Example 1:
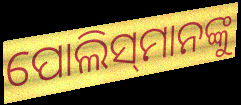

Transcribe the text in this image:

ପୋଲିସ୍‌ମାନଙ୍କୁ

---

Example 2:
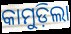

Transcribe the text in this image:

କାମୁଡ଼ିଲା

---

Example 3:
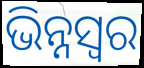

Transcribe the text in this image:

ଭିନ୍ନସ୍ବର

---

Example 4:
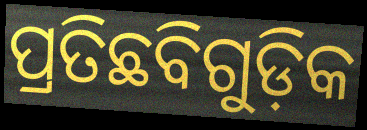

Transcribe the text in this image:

ପ୍ରତିଛବିଗୁଡ଼ିକ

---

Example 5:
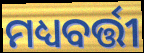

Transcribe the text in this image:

ମଧ୍ୟବର୍ତ୍ତୀ